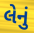
લેનું